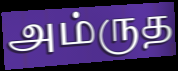
அம்ருத